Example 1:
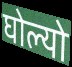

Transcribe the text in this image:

घोल्यो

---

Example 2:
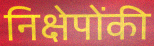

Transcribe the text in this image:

निक्षेपोंकी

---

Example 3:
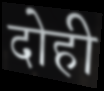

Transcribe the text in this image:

दोही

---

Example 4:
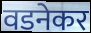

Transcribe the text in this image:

वडनेकर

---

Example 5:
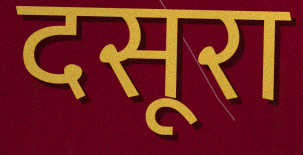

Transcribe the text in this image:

दसूरा